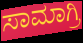
ಸಾಮಾಗ್ರಿ